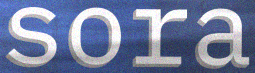
sora